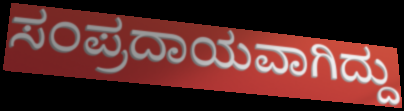
ಸಂಪ್ರದಾಯವಾಗಿದ್ದು